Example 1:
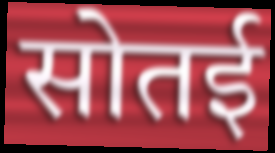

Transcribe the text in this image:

सोतई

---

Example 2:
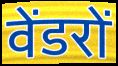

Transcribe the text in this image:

वेंडरों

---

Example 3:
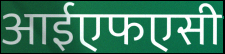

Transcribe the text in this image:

आईएफएसी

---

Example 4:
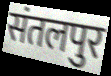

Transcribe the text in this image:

संतलपुर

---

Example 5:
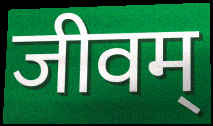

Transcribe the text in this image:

जीवम्